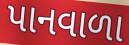
પાનવાળા